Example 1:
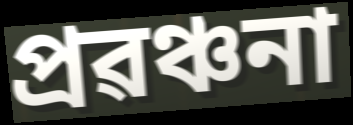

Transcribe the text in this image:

প্ৰৱঞ্চনা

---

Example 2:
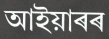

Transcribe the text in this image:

আইয়াৰৰ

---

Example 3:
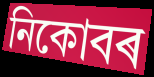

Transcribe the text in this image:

নিকোবৰ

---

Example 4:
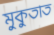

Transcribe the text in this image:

মুকুতাত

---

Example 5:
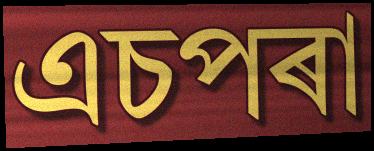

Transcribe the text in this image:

এচপৰা